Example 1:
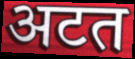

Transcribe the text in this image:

अटत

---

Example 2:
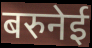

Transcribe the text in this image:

बरुनेई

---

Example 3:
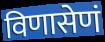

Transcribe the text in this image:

विणासेणं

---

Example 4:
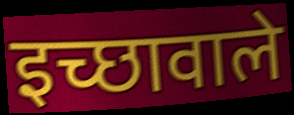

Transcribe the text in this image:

इच्छावाले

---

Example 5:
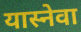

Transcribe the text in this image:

यास्नेवा